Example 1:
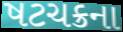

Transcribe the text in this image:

ષટચક્રના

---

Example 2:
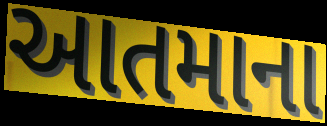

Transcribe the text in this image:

આતમાના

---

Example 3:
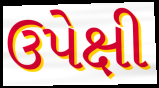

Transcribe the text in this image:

ઉપેક્ષી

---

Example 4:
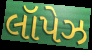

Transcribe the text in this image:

લૉપેઝ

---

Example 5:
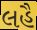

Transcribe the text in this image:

લહૈ